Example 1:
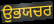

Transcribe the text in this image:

ਉਭਯਚਰ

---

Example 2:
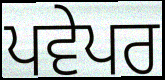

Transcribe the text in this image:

ਪਵੇਪਰ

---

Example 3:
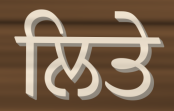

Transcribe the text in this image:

ਲਿਤੇ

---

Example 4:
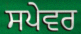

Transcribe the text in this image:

ਸਪੇਵਰ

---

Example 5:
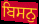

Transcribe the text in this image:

ਬਿਸਨੁ